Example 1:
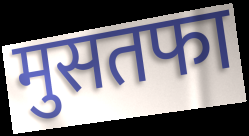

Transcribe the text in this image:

मुसतफा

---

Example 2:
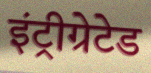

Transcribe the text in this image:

इंट्रीग्रेटेड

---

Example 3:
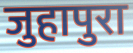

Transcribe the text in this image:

जुहापुरा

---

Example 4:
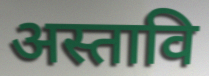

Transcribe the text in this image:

अस्तावि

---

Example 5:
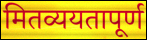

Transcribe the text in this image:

मितव्ययतापूर्ण